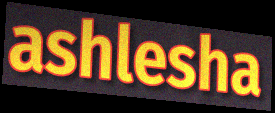
ashlesha